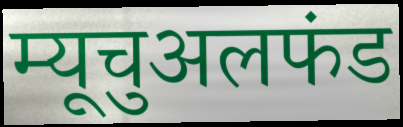
म्यूचुअलफंड